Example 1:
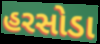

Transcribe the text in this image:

હરસોડા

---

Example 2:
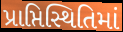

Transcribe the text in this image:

પ્રાપ્તિસ્થિતિમાં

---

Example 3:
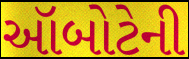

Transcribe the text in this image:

ઑબોટેની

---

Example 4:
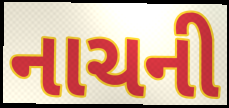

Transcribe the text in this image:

નાચની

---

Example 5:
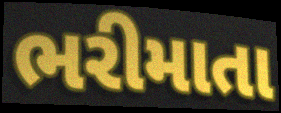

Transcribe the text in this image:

ભરીમાતા